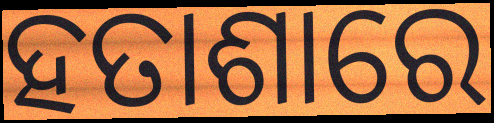
ହତାଶାରେ